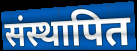
संस्थापित